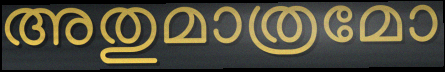
അതുമാത്രമോ